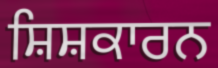
ਸ਼ਿਸ਼ਕਾਰਨ